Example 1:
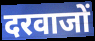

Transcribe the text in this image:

दरवाजों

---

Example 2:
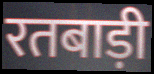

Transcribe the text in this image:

रतबाड़ी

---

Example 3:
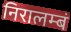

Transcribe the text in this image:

निरालम्बं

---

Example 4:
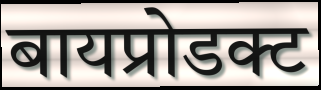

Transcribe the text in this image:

बायप्रोडक्ट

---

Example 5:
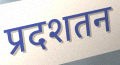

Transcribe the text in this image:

प्रदशतन